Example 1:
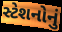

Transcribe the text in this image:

સ્ટેશનોનું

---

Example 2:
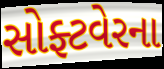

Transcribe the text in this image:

સોફ્ટવેરના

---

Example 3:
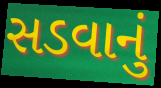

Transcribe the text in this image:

સડવાનું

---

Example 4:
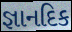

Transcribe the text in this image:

જ્ઞાનદિક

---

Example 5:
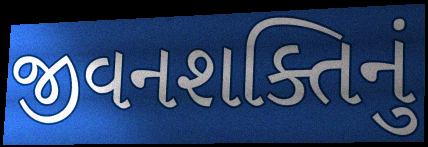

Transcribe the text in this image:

જીવનશક્તિનું